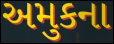
અમુકના